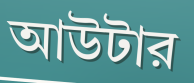
আউটার